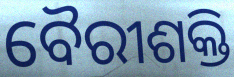
ବୈରୀଶକ୍ତି